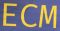
ECM